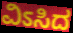
ವಿಽಸಿದ